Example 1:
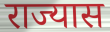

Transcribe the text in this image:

राज्यास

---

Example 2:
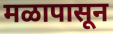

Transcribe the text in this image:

मळापासून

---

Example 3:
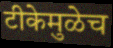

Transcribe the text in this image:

टीकेमुळेच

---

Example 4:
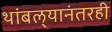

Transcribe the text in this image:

थांबल्यानंतरही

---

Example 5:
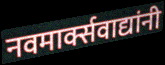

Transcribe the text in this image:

नवमार्क्सवाद्यांनी